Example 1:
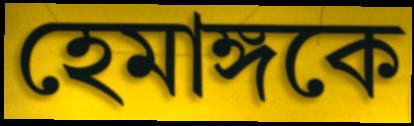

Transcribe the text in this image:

হেমাঙ্গকে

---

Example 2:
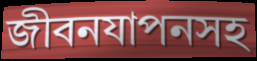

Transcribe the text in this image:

জীবনযাপনসহ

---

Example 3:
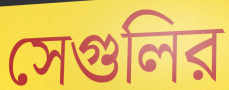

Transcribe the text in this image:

সেগুলির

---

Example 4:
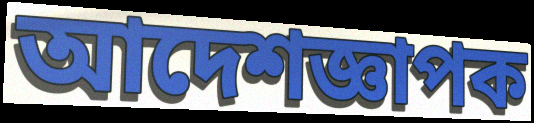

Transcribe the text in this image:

আদেশজ্ঞাপক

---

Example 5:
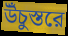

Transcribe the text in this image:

উঁচুস্তরে